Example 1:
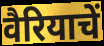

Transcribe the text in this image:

वैरियाचें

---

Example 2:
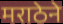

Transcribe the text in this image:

मराठेने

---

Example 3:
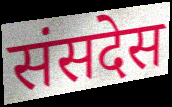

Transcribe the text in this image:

संसदेस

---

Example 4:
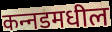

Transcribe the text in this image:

कन्नडमधील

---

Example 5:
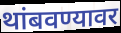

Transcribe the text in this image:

थांबवण्यावर